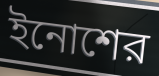
ইনোশের